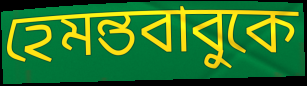
হেমন্তবাবুকে